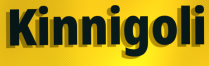
Kinnigoli